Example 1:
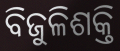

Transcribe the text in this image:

ବିଜୁଳିଶକ୍ତି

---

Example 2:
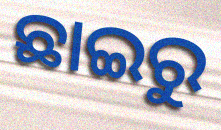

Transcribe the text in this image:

ଛାଇରୁ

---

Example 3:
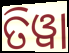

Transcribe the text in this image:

ତିୱା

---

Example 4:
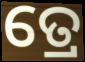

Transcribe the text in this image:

ତ୍ରେ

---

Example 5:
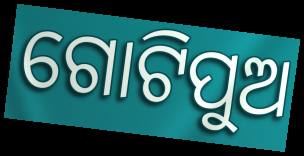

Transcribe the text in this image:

ଗୋଟିପୁଅ